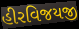
હીરવિજયજી